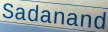
Sadanand